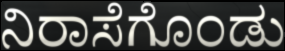
ನಿರಾಸೆಗೊಂಡು